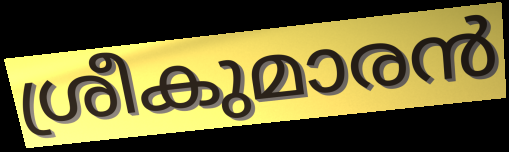
ശ്രീകുമാരൻ